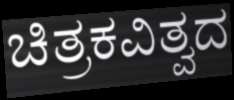
ಚಿತ್ರಕವಿತ್ವದ